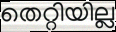
തെറ്റിയില്ല